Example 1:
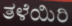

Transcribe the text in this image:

ತಳೆಯಿರಿ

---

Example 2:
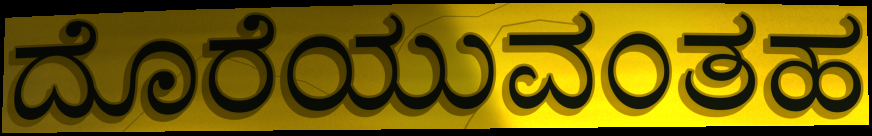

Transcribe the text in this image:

ದೊರೆಯುವಂತಹ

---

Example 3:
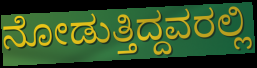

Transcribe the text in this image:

ನೋಡುತ್ತಿದ್ದವರಲ್ಲಿ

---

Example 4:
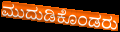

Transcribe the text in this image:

ಮುದುಡಿಕೊಂಡರು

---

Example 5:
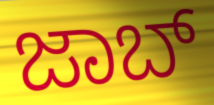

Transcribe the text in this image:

ಜಾಬ್